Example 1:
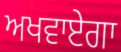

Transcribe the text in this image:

ਅਖਵਾਏਗਾ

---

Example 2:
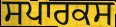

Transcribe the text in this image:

ਸਪਾਰਕਸ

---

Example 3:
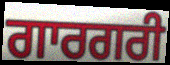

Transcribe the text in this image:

ਗਾਰਗਰੀ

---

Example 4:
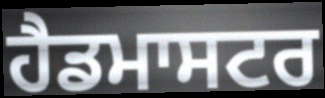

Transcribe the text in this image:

ਹੈਡਮਾਸਟਰ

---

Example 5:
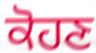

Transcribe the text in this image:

ਕੋਹਣ